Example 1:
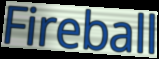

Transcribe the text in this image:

Fireball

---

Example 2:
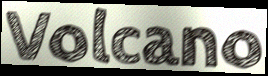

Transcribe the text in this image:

Volcano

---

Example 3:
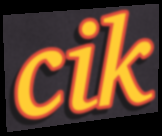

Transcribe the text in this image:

cik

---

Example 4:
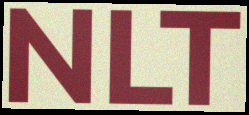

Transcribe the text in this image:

NLT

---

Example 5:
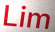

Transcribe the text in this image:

Lim